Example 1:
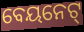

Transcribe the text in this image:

ବେୟନେଟ୍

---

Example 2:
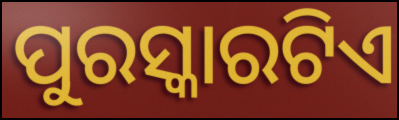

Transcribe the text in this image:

ପୁରସ୍କାରଟିଏ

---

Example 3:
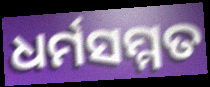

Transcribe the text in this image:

ଧର୍ମସମ୍ମତ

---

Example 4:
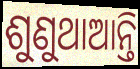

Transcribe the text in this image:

ଶୁଣୁଥାଆନ୍ତି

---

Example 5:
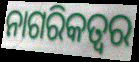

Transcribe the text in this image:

ନାଗରିକତ୍ୱର